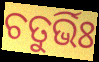
ଚତୁର୍ଭିଃ